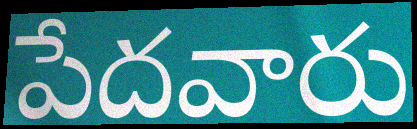
పేదవారు